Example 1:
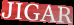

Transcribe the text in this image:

JIGAR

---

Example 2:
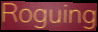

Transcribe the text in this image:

Roguing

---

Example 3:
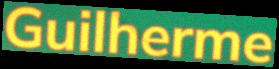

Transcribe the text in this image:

Guilherme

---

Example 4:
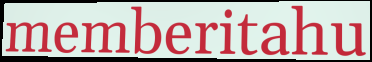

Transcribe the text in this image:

memberitahu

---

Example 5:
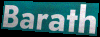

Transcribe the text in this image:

Barath